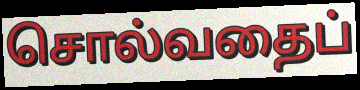
சொல்வதைப்